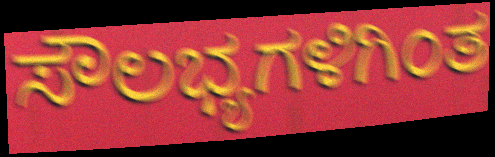
ಸೌಲಭ್ಯಗಳಿಗಿಂತ